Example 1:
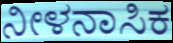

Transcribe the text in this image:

ನೀಳನಾಸಿಕ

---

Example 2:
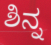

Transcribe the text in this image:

ಶಿನ್ನ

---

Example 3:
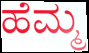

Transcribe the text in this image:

ಹೆಮ್ಮ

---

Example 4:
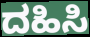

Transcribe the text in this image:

ದಹಿಸಿ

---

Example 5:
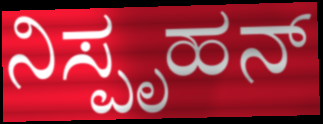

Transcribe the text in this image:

ನಿಸ್ಪೃಹನ್